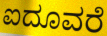
ಐದೂವರೆ